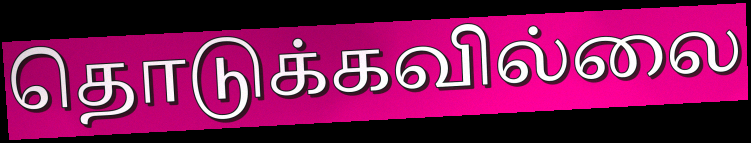
தொடுக்கவில்லை